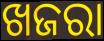
ଖଜରା